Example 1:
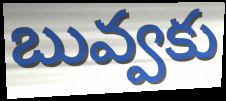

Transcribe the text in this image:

బువ్వకు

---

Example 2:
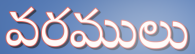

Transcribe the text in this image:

వరములు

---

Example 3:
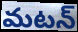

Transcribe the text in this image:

మటన్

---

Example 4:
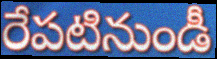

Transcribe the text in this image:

రేపటినుండీ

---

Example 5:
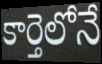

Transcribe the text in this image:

కార్తెలోనే